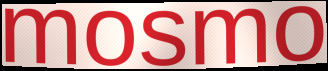
mosmo